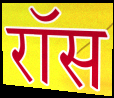
रॉस